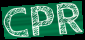
CPR